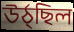
উঠ্ছিল